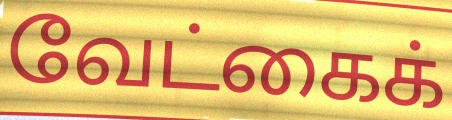
வேட்கைக்